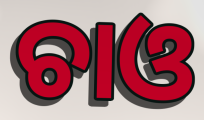
ଚାଓ